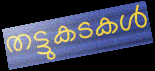
തട്ടുകടകൾ